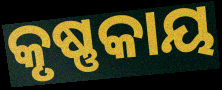
କୃଷ୍ଣକାୟ